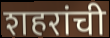
शहरांची